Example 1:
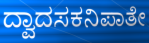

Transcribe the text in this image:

ದ್ವಾದಸಕನಿಪಾತೇ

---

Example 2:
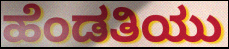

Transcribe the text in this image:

ಹೆಂಡತಿಯು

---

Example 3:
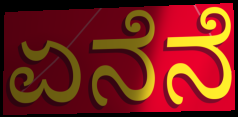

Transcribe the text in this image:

ಏನೆನೆ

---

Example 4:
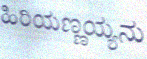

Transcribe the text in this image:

ಹಿರಿಯಣ್ಣಯ್ಯನು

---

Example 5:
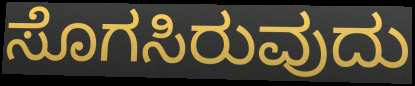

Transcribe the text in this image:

ಸೊಗಸಿರುವುದು